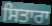
ਸਿਤਾਰਾ